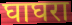
घाघरा